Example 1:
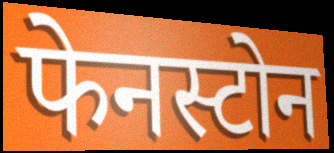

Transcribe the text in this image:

फेनस्टोन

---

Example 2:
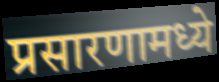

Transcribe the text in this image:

प्रसारणामध्ये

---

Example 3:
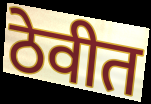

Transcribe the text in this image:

ठेवीत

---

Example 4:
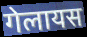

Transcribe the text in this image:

गेलायस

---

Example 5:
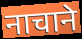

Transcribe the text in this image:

नाचाने